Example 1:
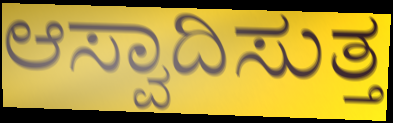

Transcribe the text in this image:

ಆಸ್ವಾದಿಸುತ್ತ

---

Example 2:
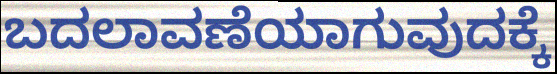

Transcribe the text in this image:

ಬದಲಾವಣೆಯಾಗುವುದಕ್ಕೆ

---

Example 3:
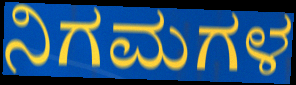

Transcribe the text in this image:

ನಿಗಮಗಳ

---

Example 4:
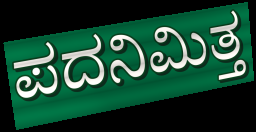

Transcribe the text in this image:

ಪದನಿಮಿತ್ತ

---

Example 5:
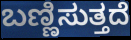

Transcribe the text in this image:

ಬಣ್ಣಿಸುತ್ತದೆ